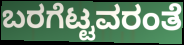
ಬರಗೆಟ್ಟವರಂತೆ